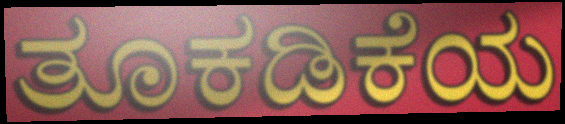
ತೂಕಡಿಕೆಯ